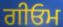
ਗੀਓਮ